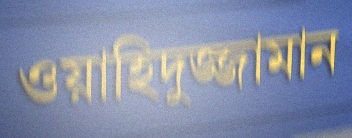
ওয়াহিদুজ্জামান